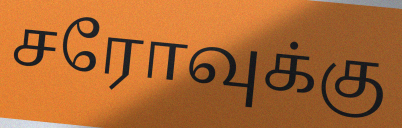
சரோவுக்கு